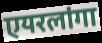
एयरलांगा